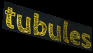
tubules